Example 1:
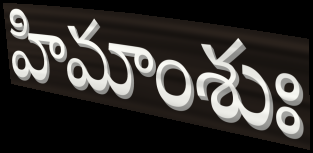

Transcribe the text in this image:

హిమాంశుః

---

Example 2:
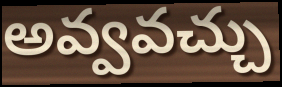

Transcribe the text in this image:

అవ్వవచ్చు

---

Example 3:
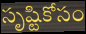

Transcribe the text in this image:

సృష్టికోసం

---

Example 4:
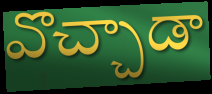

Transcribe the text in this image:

వొచ్చాడా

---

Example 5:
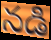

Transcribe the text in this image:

నడి